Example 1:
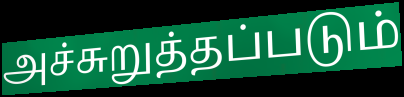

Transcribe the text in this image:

அச்சுறுத்தப்படும்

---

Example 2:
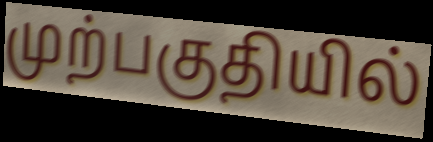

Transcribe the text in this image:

முற்பகுதியில்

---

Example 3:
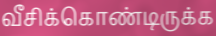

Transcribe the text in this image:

வீசிக்கொண்டிருக்க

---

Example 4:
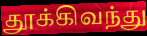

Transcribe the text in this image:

தூக்கிவந்து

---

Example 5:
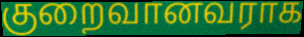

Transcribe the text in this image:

குறைவானவராக